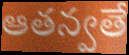
ఆతన్వతే